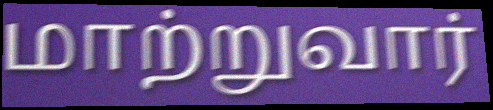
மாற்றுவார்